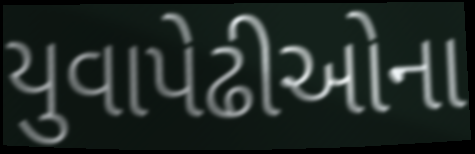
યુવાપેઢીઓના